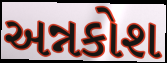
અન્નકોશ